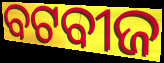
ବଟବୀଜ